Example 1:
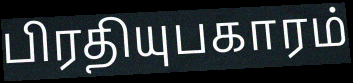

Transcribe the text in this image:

பிரதியுபகாரம்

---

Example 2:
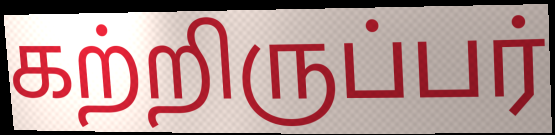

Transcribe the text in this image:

கற்றிருப்பர்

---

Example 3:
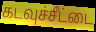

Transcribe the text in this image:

கடவுச்சீட்டை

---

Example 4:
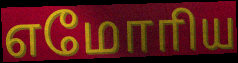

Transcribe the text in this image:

எமோரிய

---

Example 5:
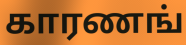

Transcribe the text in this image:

காரணங்